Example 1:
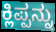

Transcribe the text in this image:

ಕ್ಲಿಪ್ಪನ್ನು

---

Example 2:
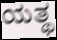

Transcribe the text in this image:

ಯತ್ಥ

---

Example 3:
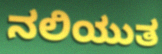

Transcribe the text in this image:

ನಲಿಯುತ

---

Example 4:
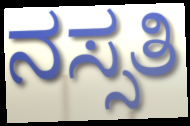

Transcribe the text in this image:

ನಸ್ಸತಿ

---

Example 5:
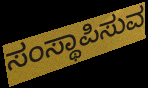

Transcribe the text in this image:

ಸಂಸ್ಥಾಪಿಸುವ